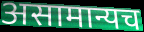
असामान्यच